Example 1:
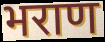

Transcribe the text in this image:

भराण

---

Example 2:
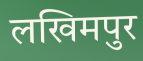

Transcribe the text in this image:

लखिमपुर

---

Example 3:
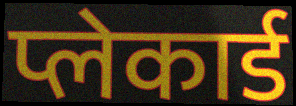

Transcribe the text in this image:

प्‍लेकार्ड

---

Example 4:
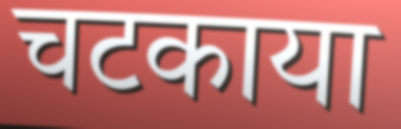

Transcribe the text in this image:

चटकाया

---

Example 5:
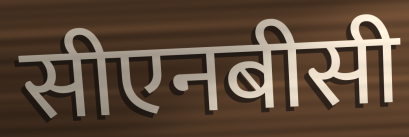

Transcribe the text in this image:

सीएनबीसी